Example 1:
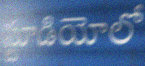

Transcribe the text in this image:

స్టూడియోలో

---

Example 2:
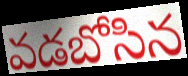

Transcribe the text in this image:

వడబోసిన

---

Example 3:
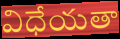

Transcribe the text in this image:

విధేయతా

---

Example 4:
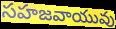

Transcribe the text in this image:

సహజవాయువు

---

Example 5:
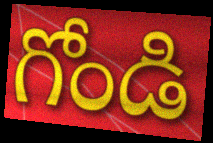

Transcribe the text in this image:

గోండి